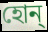
হোন্